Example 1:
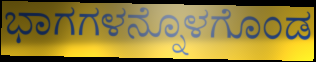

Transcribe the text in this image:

ಭಾಗಗಳನ್ನೊಳಗೊಂಡ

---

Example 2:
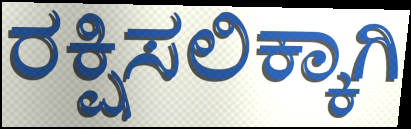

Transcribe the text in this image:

ರಕ್ಷಿಸಲಿಕ್ಕಾಗಿ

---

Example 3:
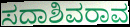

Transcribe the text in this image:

ಸದಾಶಿವರಾವ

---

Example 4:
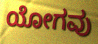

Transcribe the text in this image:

ಯೋಗವು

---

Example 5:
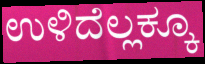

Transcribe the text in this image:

ಉಳಿದೆಲ್ಲಕ್ಕೂ